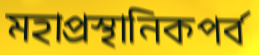
মহাপ্রস্থানিকপর্ব